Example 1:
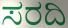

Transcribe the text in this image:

ಸರದಿ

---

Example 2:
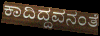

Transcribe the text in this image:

ಕಾದಿದ್ದವನಂತೆ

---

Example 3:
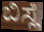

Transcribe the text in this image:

ಬಿಸ್ಲೆ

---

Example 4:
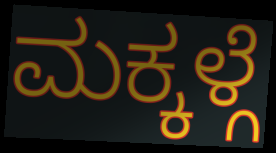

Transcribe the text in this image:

ಮಕ್ಕಳ್ಗೆ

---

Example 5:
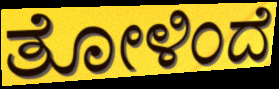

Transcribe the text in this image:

ತೋಳಿಂದೆ